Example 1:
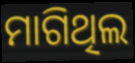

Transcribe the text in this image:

ମାଗିଥିଲ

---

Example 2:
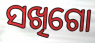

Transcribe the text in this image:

ସଖିଗୋ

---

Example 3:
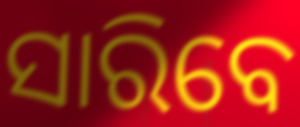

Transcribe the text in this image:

ସାରିବେ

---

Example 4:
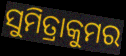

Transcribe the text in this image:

ସୁମିତ୍ରାକୁମର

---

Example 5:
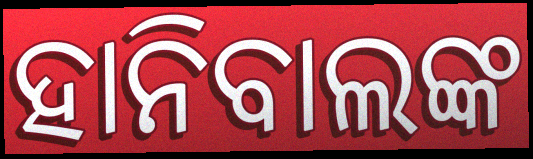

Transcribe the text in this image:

ହାନିବାଲଙ୍କ